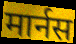
मार्नस